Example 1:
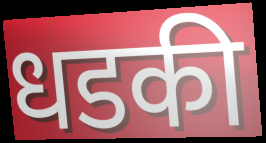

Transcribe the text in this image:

धडकी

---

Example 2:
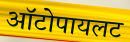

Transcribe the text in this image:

ऑटोपायलट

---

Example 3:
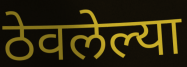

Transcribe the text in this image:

ठेवलेल्या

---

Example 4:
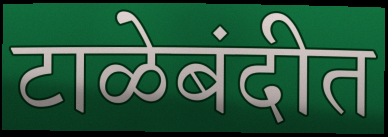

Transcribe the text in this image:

टाळेबंदीत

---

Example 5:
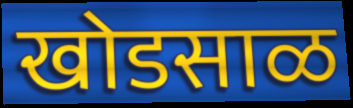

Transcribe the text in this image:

खोडसाळ